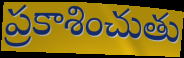
ప్రకాశించుతు